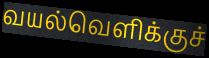
வயல்வெளிக்குச்